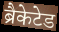
ब्रैकेटेड